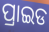
ପ୍ରାଇଡ